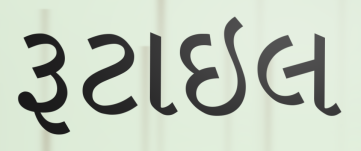
રૂટાઇલ